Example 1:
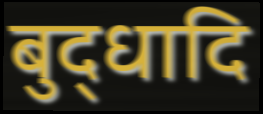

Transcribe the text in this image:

बुद्धादि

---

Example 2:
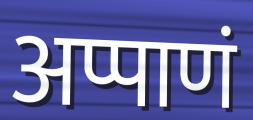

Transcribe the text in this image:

अप्पाणं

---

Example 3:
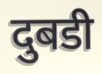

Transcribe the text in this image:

दुबडी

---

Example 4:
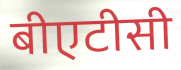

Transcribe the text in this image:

बीएटीसी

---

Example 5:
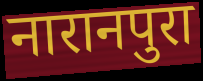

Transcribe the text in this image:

नारानपुरा